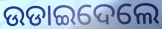
ଉଡାଇଦେଲେ